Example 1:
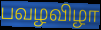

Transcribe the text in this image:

பவழவிழா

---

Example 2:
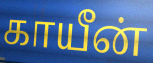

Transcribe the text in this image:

காயீன்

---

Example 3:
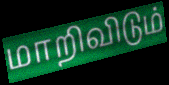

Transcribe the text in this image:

மாறிவிடும்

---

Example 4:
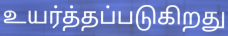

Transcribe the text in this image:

உயர்த்தப்படுகிறது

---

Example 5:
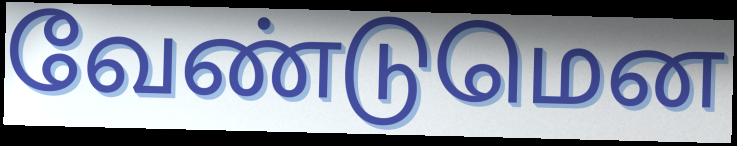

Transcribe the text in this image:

வேண்டுமென